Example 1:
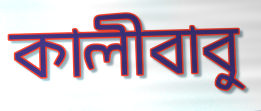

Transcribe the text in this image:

কালীবাবু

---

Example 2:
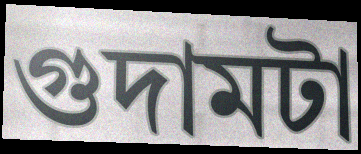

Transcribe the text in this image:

গুদামটা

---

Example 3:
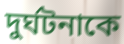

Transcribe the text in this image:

দুর্ঘটনাকে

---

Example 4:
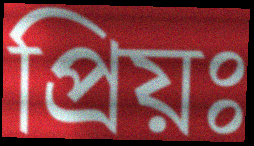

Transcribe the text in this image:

প্রিয়ঃ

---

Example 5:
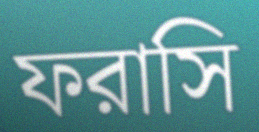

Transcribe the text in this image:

ফরাসি